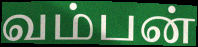
வம்பன்